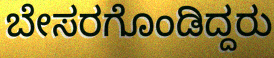
ಬೇಸರಗೊಂಡಿದ್ದರು